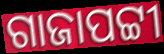
ଗାଜାପଟ୍ଟୀ